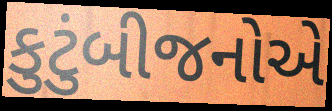
કુટુંબીજનોએ